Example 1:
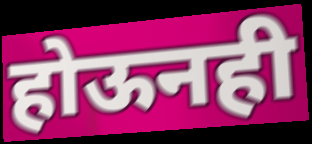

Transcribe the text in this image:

होऊनही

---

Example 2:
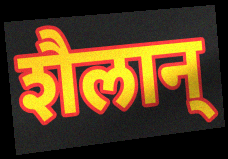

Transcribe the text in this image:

शैलान्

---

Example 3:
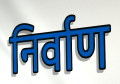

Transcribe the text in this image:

निर्वाण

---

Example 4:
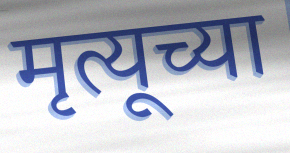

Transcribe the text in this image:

मृत्यूच्या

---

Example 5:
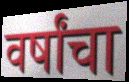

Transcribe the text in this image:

वर्षांचा